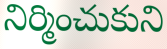
నిర్మించుకుని